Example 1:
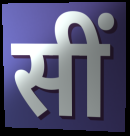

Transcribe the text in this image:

सीं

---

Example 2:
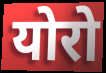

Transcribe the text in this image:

योरो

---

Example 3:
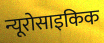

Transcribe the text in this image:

न्यूरोसाइकिक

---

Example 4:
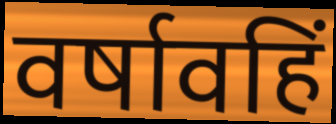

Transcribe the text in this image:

वर्षावहिं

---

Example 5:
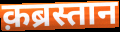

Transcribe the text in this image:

क़ब्रस्तान